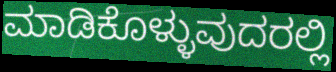
ಮಾಡಿಕೊಳ್ಳುವುದರಲ್ಲಿ